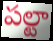
పల్టా